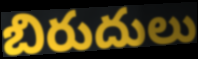
బిరుదులు